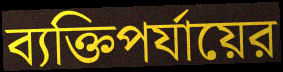
ব্যক্তিপর্যায়ের